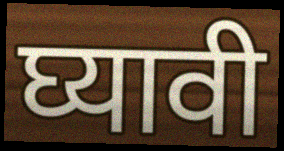
घ्यावी